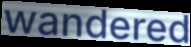
wandered